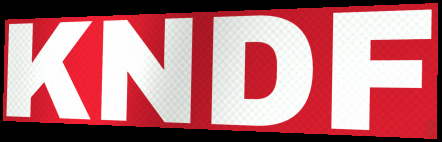
KNDF